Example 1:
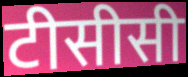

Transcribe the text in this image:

टीसीसी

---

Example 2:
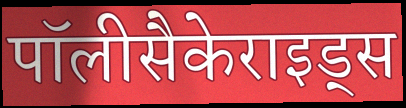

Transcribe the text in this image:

पॉलीसैकेराइड्स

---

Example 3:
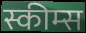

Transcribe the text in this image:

स्‍कीम्‍स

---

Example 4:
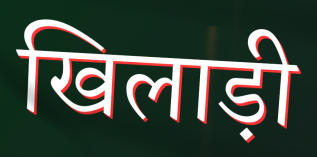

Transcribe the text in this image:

खिलाड़ी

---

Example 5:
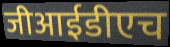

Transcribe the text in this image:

जीआईडीएच